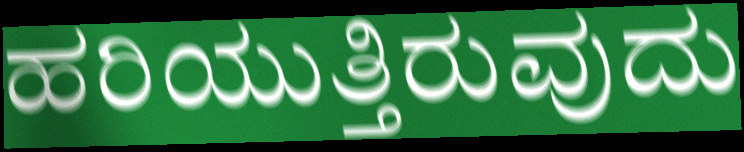
ಹರಿಯುತ್ತಿರುವುದು